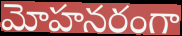
మోహనరంగా